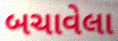
બચાવેલા